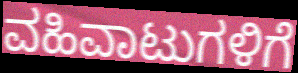
ವಹಿವಾಟುಗಳಿಗೆ